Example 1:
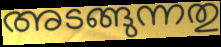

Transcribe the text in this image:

അടങ്ങുന്നതു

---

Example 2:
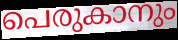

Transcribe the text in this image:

പെരുകാനും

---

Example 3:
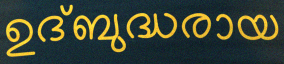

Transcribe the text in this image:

ഉദ്ബുദ്ധരായ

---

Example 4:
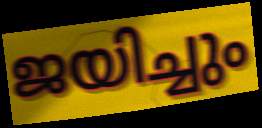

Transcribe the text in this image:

ജയിച്ചും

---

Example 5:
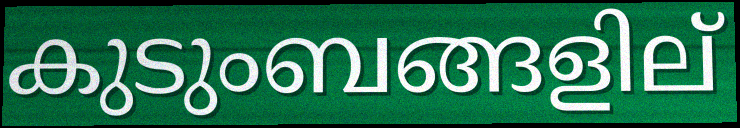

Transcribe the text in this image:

കുടുംബങ്ങളില്